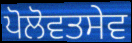
ਪੋਲੋਵਤਸੇਵ